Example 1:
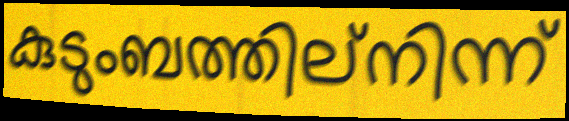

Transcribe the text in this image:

കുടുംബത്തില്നിന്ന്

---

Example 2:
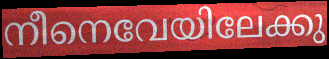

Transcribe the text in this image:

നീനെവേയിലേക്കു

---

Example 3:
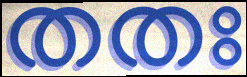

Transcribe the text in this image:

തതഃ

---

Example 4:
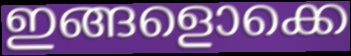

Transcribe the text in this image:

ഇങ്ങളൊക്കെ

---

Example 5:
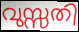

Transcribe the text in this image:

വുസ്സതി